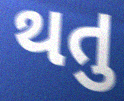
થતુ